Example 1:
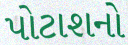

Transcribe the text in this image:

પોટાશનો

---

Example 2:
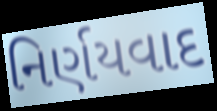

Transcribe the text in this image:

નિર્ણયવાદ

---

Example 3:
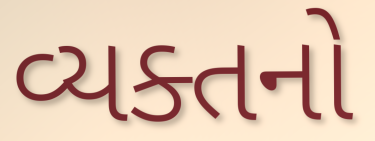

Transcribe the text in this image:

વ્યક્તનો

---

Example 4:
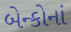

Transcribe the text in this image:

બેન્કોનાં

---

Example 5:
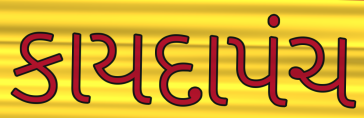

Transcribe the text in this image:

કાયદાપંચ